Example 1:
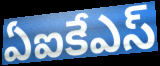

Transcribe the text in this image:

ఏఐకేఎస్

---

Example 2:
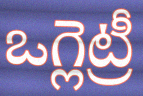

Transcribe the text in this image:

ఒగ్లెట్రీ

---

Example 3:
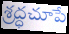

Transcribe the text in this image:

శ్రద్ధచూపే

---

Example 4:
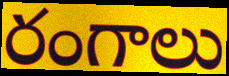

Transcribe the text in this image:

రంగాలు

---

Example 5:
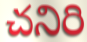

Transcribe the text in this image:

చనిరి